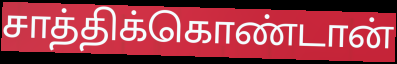
சாத்திக்கொண்டான்